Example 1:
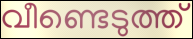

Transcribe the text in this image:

വീണ്ടെടുത്ത്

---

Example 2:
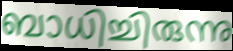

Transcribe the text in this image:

ബാധിച്ചിരുന്നു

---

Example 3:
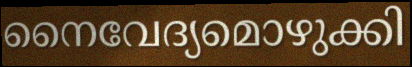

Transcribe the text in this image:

നൈവേദ്യമൊഴുക്കി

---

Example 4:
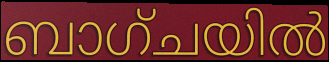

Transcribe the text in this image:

ബാഗ്ചയിൽ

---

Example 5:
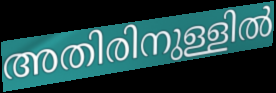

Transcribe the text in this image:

അതിരിനുള്ളിൽ